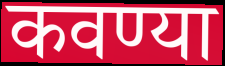
कवण्या